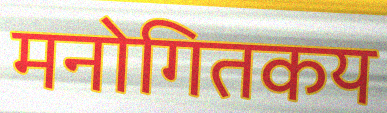
मनोगितकय